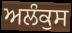
ਅਲੰਕੁਸ